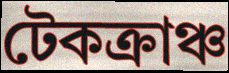
টেকক্রাঞ্চ